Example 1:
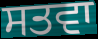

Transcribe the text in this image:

ਸਤਵਾ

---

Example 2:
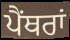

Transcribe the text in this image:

ਪੈਂਥਰਾਂ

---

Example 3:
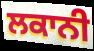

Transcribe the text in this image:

ਲਕਾਨੀ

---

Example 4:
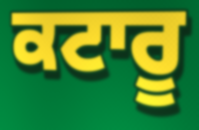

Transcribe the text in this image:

ਕਟਾਰੂ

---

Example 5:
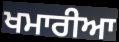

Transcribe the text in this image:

ਖਮਾਰੀਆ